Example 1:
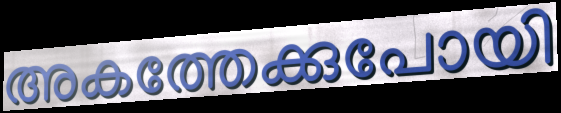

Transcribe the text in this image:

അകത്തേക്കുപോയി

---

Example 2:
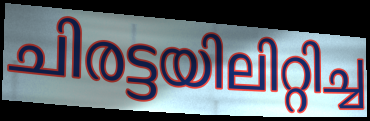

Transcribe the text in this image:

ചിരട്ടയിലിറ്റിച്ച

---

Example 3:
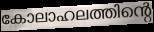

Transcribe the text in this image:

കോലാഹലത്തിന്റെ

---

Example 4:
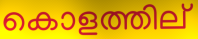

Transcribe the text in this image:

കൊളത്തില്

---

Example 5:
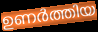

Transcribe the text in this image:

ഉണർത്തിയ